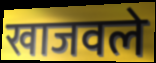
खाजवले